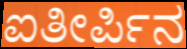
ಐತೀರ್ಪಿನ